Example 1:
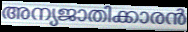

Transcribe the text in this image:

അന്യജാതിക്കാരൻ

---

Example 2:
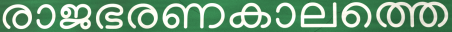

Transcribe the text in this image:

രാജഭരണകാലത്തെ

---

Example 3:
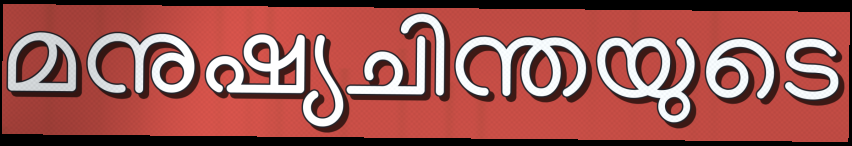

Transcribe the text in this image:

മനുഷ്യചിന്തയുടെ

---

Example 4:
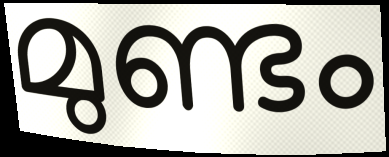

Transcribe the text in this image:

മുണ്ടം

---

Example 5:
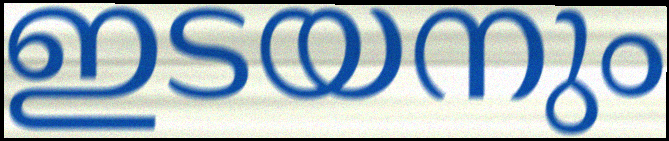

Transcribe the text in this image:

ഇടയനും